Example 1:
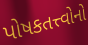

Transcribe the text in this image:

પોષકતત્ત્વોનો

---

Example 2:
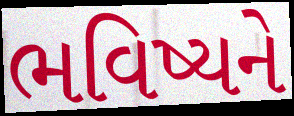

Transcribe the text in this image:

ભવિષ્યને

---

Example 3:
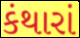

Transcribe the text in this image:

કંથારાં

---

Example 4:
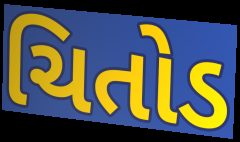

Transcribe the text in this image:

ચિતોડ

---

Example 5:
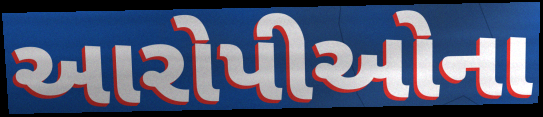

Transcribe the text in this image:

આરોપીઓના